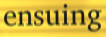
ensuing